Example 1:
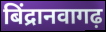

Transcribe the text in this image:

बिंद्रानवागढ़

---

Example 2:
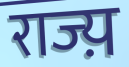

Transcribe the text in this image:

राज्य़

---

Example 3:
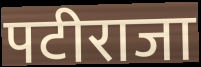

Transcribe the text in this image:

पटीराजा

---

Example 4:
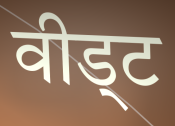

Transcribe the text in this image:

वीड्ट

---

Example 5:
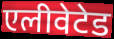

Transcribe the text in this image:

एलीवेटेड